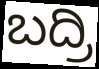
ಬದ್ರಿ